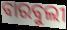
ବାରବୁଲୀ